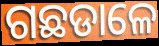
ଗଛଡାଳେ